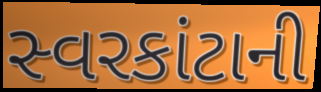
સ્વરકાંટાની